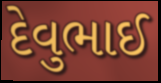
દેવુભાઈ